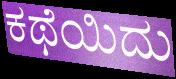
ಕಥೆಯಿದು